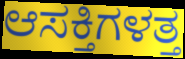
ಆಸಕ್ತಿಗಳತ್ತ